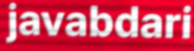
javabdari